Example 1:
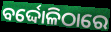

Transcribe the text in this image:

ବର୍ଦ୍ଦୋଳିଠାରେ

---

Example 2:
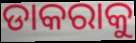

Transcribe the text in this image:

ଡାକରାକୁ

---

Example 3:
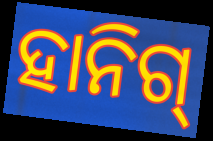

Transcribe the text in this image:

ହାନିଗ୍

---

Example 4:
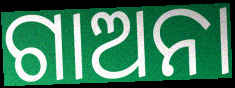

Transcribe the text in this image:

ଗାଅନା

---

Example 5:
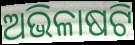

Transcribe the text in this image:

ଅଭିଳାଷଟି